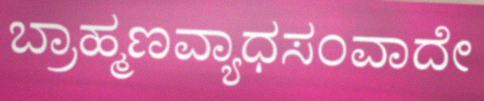
ಬ್ರಾಹ್ಮಣವ್ಯಾಧಸಂವಾದೇ